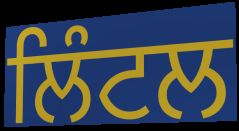
ਲਿੰਟਲ